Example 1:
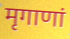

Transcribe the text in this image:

मृगाणां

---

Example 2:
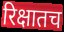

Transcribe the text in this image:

रिक्षातच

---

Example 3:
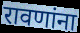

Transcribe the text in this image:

रावणांना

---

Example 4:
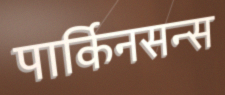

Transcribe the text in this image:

पार्किनसन्स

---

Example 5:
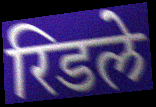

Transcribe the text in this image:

रिडले